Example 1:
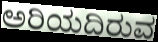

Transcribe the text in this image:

ಅರಿಯದಿರುವ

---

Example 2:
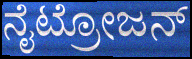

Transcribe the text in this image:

ನೈಟ್ರೋಜನ್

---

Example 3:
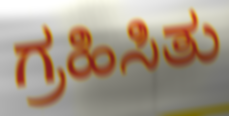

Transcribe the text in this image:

ಗ್ರಹಿಸಿತು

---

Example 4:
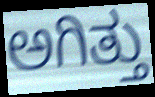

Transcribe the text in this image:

ಅಗಿತ್ತು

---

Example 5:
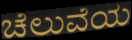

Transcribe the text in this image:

ಚೆಲುವೆಯ